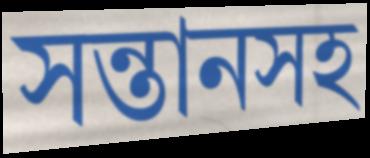
সন্তানসহ